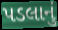
પડલાનું